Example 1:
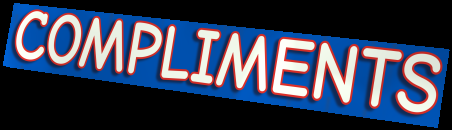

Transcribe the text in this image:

COMPLIMENTS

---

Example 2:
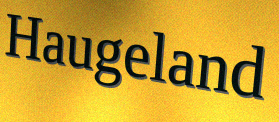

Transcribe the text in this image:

Haugeland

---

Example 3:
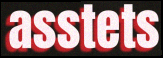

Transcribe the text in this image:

asstets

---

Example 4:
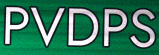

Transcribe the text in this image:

PVDPS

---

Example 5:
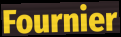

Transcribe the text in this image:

Fournier